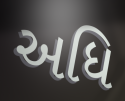
અધિ